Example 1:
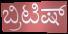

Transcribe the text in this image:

ಬ್ರಿಟಿಷ್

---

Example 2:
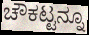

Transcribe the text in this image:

ಚೌಕಟ್ಟನ್ನೂ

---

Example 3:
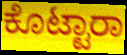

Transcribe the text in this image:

ಕೊಟ್ಟಾರಾ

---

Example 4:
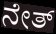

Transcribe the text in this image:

ನೇತ್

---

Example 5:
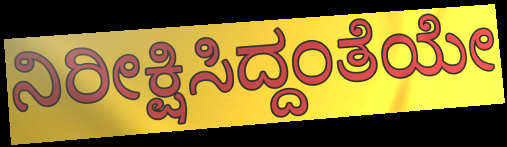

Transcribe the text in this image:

ನಿರೀಕ್ಷಿಸಿದ್ದಂತೆಯೇ